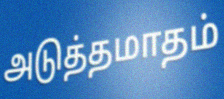
அடுத்தமாதம்